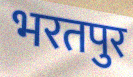
भरतपुर